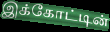
இக்கோட்டின்